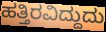
ಹತ್ತಿರವಿದ್ದುದು